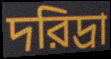
দরিদ্রা